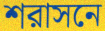
শরাসনে